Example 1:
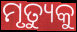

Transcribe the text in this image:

ମୃତ୍ୟୁକୁ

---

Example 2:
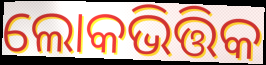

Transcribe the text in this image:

ଲୋକଭିତ୍ତିକ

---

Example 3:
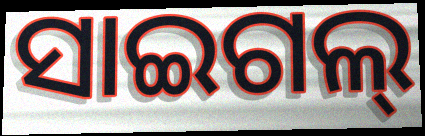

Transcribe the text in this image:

ସାଇଗଲ୍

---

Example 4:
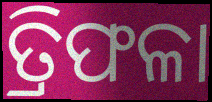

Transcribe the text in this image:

ତ୍ରିଫଳା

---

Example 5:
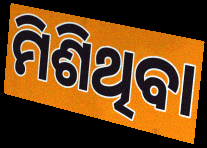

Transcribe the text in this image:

ମିଶିଥିବା